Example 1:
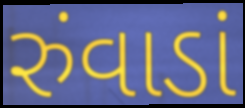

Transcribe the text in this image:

રુંવાડાં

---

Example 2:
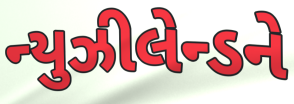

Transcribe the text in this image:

ન્યુઝીલેન્ડને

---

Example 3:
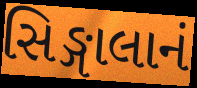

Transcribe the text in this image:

સિઙ્ગાલાનં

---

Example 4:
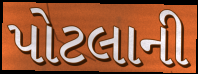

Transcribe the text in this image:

પોટલાની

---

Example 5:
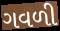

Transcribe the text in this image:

ગવળી